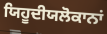
ਯਿਹੂਦੀਯਲੋਕਾਨਾਂ